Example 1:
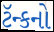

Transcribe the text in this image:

ટૅન્કનો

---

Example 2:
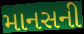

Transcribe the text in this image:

માનસની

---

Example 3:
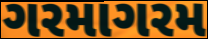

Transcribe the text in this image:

ગરમાગરમ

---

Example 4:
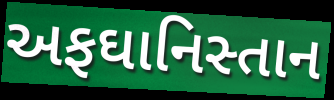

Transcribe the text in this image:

અફઘાનિસ્તાન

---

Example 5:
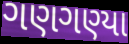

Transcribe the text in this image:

ગણગણ્યા